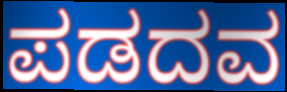
ಪಡದವ